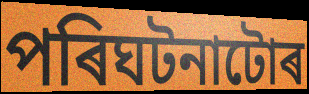
পৰিঘটনাটোৰ